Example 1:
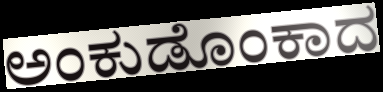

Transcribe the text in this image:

ಅಂಕುಡೊಂಕಾದ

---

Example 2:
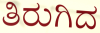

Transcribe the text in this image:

ತಿರುಗಿದ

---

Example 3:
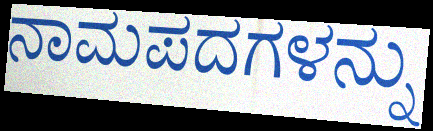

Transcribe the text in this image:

ನಾಮಪದಗಳನ್ನು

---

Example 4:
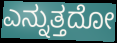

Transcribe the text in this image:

ಎನ್ನುತ್ತದೋ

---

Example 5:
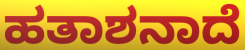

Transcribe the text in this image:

ಹತಾಶನಾದೆ